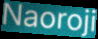
Naoroji